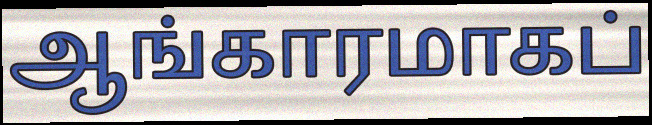
ஆங்காரமாகப்